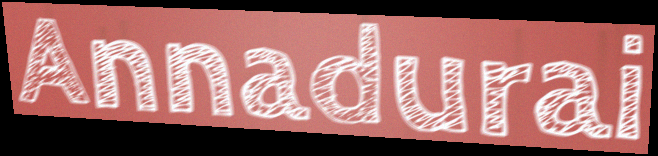
Annadurai